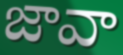
జావా